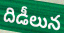
దిడీలున